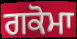
ਗਕੋਮਾ